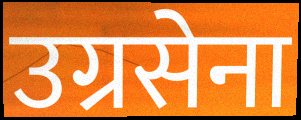
उग्रसेना